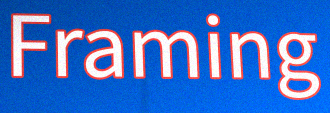
Framing